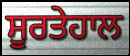
ਸੂਰਤੇਹਾਲ